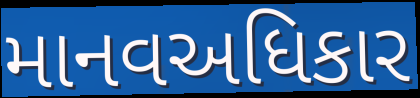
માનવઅધિકાર